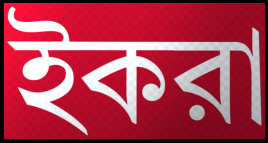
ইকরা